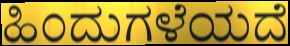
ಹಿಂದುಗಳೆಯದೆ